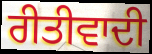
ਰੀਤੀਵਾਦੀ